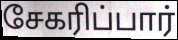
சேகரிப்பார்